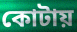
কোটায়